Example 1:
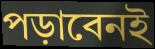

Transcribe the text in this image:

পড়াবেনই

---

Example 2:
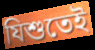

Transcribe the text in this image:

যিশুতেই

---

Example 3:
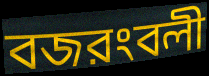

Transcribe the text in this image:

বজরংবলী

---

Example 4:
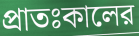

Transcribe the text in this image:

প্রাতঃকালের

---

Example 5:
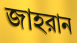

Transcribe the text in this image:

জাহরান